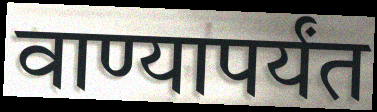
वाण्यापर्यंत